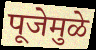
पूजेमुळे